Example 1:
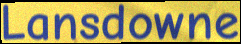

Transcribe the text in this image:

Lansdowne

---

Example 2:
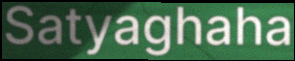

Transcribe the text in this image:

Satyaghaha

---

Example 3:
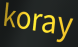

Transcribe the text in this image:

koray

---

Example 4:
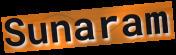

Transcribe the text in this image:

Sunaram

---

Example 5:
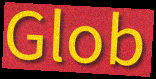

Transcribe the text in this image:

Glob